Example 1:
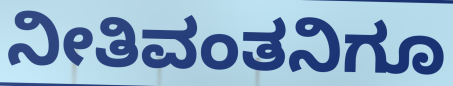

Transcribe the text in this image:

ನೀತಿವಂತನಿಗೂ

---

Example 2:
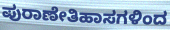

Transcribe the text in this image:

ಪುರಾಣೇತಿಹಾಸಗಳಿಂದ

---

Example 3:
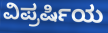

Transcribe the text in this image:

ವಿಪ್ರರ್ಷಿಯ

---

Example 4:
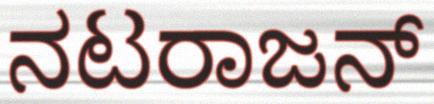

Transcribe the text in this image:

ನಟರಾಜನ್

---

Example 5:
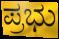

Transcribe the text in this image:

ಪ್ರಭು